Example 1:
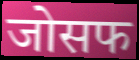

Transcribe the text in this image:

जोसफ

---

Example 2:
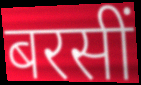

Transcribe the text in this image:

बरसीं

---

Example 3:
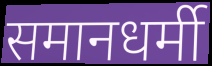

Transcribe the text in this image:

समानधर्मी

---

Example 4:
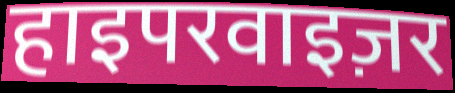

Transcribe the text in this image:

हाइपरवाइज़र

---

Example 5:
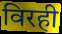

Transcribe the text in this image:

विरही